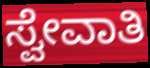
ಸ್ವೇವಾತಿ